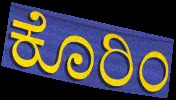
ಕೊರಿಂ